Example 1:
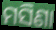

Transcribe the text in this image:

ମସିଣା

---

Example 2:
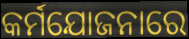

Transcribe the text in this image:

କର୍ମଯୋଜନାରେ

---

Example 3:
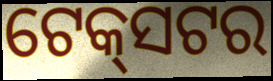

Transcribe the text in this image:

ଟେକ୍‌ସଟର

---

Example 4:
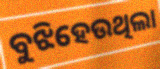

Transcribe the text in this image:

ବୁଝିହେଉଥିଲା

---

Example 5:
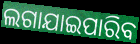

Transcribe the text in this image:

ଲଗାଯାଇପାରିବ